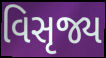
વિસૃજ્ય